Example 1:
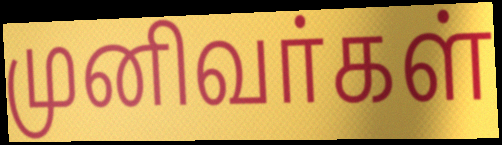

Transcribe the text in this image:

முனிவர்கள்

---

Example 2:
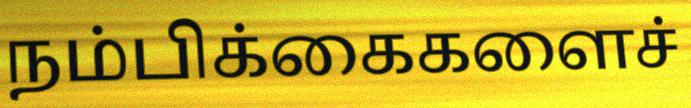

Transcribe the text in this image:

நம்பிக்கைகளைச்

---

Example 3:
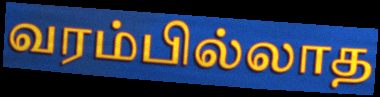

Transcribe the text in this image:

வரம்பில்லாத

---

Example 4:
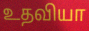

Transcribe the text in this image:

உதவியா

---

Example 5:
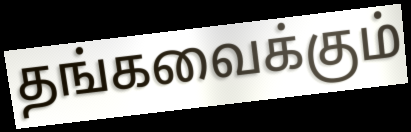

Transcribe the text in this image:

தங்கவைக்கும்